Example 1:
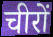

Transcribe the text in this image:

चीरों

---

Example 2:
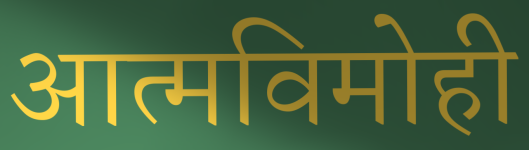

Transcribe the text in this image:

आत्मविमोही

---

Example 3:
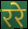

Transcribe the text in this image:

ररे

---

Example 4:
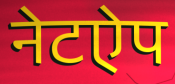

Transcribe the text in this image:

नेटऐप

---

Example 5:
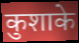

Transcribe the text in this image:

कुशाके